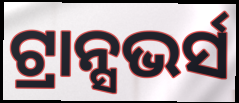
ଟ୍ରାନ୍ସଭର୍ସ